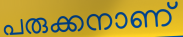
പരുക്കനാണ്